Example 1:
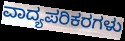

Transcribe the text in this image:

ವಾದ್ಯಪರಿಕರಗಳು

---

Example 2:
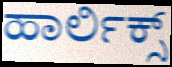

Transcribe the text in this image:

ಹಾರ್ಲಿಕ್ಸ್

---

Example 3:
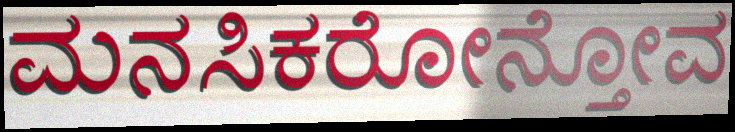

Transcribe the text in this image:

ಮನಸಿಕರೋನ್ತೋವ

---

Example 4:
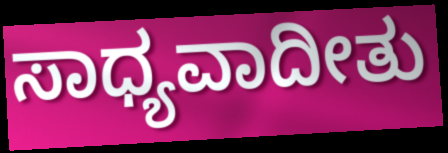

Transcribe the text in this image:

ಸಾಧ್ಯವಾದೀತು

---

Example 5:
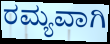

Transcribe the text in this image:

ರಮ್ಯವಾಗಿ